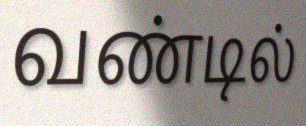
வண்டில்